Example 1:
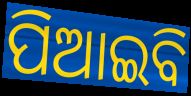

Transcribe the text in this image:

ପିଆଇବି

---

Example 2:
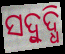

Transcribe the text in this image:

ସଦ୍ବୁଦ୍ଧି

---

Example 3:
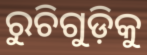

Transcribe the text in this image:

ରୁଚିଗୁଡ଼ିକୁ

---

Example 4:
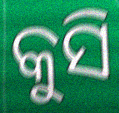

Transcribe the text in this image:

କୁସି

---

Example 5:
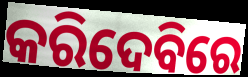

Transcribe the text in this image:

କରିଦେବିରେ